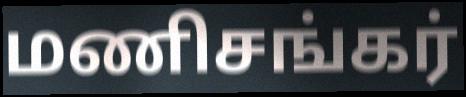
மணிசங்கர்